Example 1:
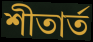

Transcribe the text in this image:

শীতার্ত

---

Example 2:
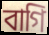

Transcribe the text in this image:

বাগি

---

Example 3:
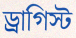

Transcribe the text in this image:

ড্রাগিস্ট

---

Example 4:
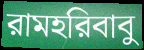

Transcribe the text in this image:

রামহরিবাবু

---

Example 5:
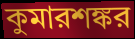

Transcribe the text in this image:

কুমারশঙ্কর